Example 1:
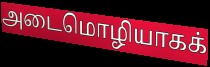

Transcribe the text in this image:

அடைமொழியாகக்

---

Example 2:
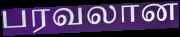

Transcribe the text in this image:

பரவலான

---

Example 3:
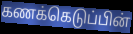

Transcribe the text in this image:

கணக்கெடுப்பின்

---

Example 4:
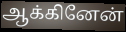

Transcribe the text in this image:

ஆக்கினேன்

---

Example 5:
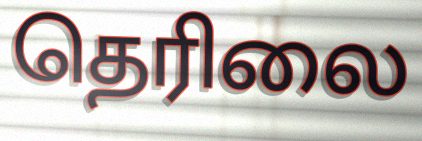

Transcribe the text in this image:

தெரிலை